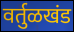
वर्तुळखंड